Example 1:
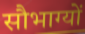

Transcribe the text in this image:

सौभाग्यों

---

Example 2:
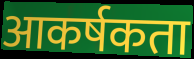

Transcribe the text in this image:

आकर्षकता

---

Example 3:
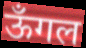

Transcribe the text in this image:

ऊँगल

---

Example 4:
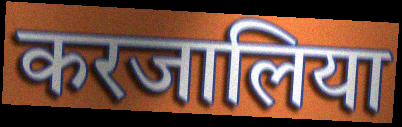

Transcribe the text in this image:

करजालिया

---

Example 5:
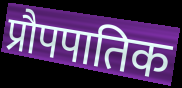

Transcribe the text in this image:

प्रौपपातिक